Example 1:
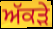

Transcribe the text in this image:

ਅੱਕੜੇ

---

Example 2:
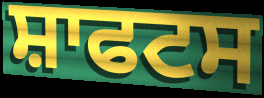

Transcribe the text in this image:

ਸ਼ਾਫਟਸ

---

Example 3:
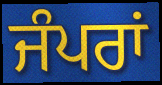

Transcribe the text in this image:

ਜੰਪਰਾਂ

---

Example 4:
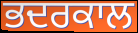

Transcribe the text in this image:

ਭਦਰਕਾਲ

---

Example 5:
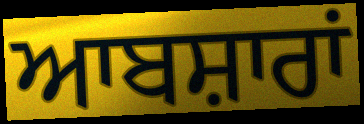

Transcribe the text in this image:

ਆਬਸ਼ਾਰਾਂ